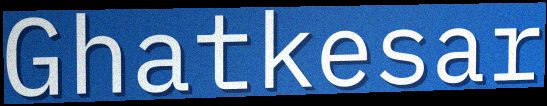
Ghatkesar